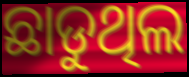
ଛାଡୁଥିଲ